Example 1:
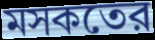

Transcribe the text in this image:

মসকতের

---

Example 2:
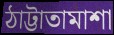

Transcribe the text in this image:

ঠাট্টাতামাশা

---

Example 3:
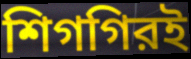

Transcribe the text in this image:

শিগগিরই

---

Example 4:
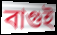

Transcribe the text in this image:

বাগুই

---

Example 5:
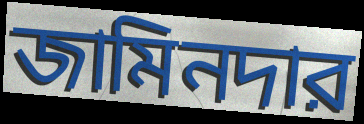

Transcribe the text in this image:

জামিনদার